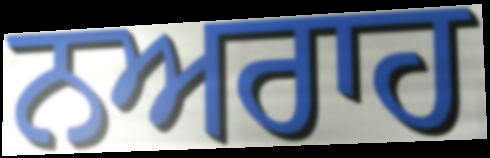
ਨਅਰਾਹ